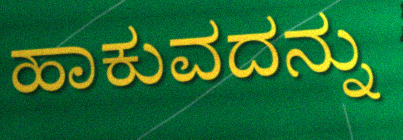
ಹಾಕುವದನ್ನು